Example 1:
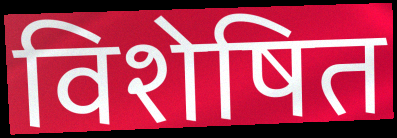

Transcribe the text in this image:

विशेषित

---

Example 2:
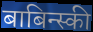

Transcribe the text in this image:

बाबिन्स्की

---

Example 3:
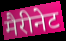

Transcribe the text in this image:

मैरीनेट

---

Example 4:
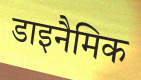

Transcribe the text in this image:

डाइनैमिक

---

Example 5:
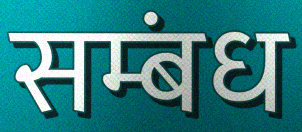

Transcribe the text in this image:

सम्बंध